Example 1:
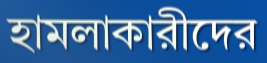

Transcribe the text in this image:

হামলাকারীদের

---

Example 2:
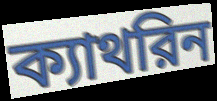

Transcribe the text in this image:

ক্যাথরিন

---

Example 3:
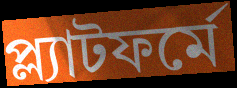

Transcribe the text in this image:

প্ল্যাটফর্মে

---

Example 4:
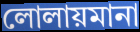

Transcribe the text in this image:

লোলায়মানা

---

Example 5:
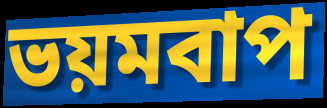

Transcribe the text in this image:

ভয়মবাপ